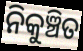
ନିକୁଞ୍ଚିତ